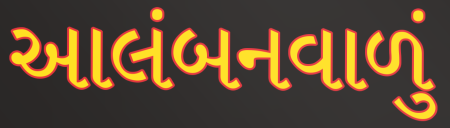
આલંબનવાળું